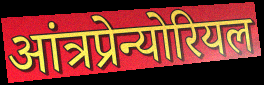
आंत्रप्रेन्योरियल